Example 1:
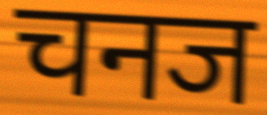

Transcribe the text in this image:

चनज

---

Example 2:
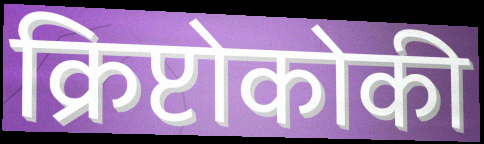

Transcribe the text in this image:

क्रिप्टोकोकी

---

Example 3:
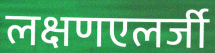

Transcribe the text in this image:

लक्षणएलर्जी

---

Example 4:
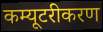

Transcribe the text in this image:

कम्यूटरीकरण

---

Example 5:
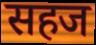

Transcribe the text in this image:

सहज